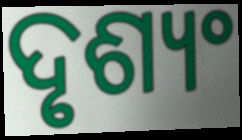
ଦୃଶ୍ୟଂ